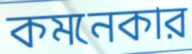
কমনেকার